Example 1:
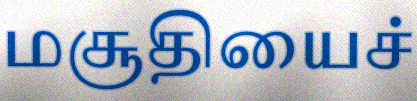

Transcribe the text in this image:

மசூதியைச்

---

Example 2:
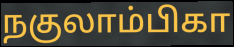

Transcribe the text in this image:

நகுலாம்பிகா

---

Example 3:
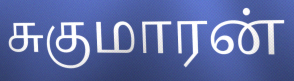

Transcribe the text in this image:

சுகுமாரன்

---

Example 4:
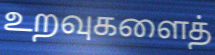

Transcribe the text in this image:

உறவுகளைத்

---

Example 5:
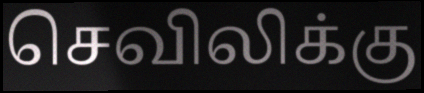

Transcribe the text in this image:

செவிலிக்கு